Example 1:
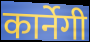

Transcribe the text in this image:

कार्नेगी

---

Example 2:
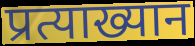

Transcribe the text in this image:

प्रत्याख्यान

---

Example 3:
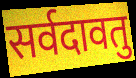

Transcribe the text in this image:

सर्वदावतु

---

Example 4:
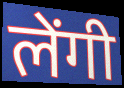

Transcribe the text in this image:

लेंगी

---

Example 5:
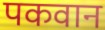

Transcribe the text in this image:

पकवान